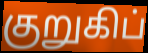
குறுகிப்